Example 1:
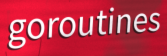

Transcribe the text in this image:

goroutines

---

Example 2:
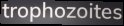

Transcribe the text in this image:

trophozoites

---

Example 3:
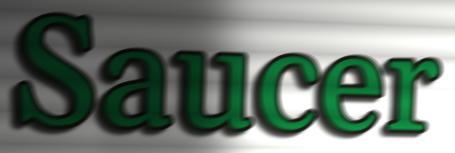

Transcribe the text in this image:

Saucer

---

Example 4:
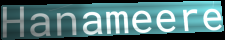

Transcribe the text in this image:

Hanameere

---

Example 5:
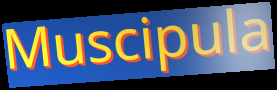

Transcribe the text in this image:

Muscipula